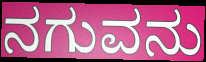
ನಗುವನು